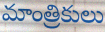
మాంత్రికులు